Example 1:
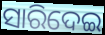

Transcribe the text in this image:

ସାରିଦେଇ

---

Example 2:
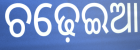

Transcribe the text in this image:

ଚଢ଼େଇଆ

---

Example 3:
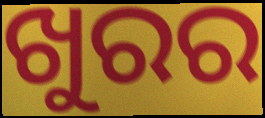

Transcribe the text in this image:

ଖୁରର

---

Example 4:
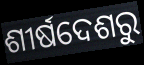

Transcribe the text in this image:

ଶୀର୍ଷଦେଶରୁ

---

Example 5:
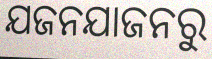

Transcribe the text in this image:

ଯଜନଯାଜନରୁ